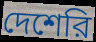
দেশেরি